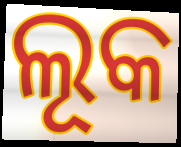
ଲୂକ